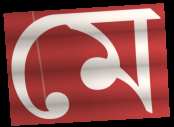
মে